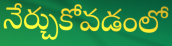
నేర్చుకోవడంలో